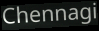
Chennagi